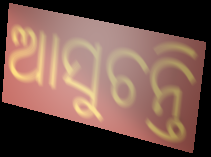
ଆସୁଚନ୍ତି